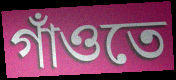
গাঁওতে